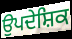
ਉਪਦੇਸ਼ਿਕ